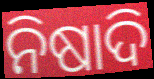
ନିଷାଦି